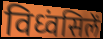
विध्वंसिलें